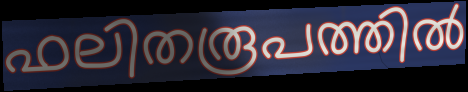
ഫലിതരൂപത്തിൽ